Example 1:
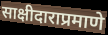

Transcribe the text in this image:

साक्षीदाराप्रमाणे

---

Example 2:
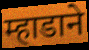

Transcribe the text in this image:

म्हाडाने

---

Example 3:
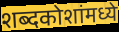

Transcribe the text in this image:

शब्दकोशांमध्ये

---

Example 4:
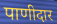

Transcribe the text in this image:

पाणीदार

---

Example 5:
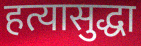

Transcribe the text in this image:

हत्यासुद्धा